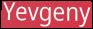
Yevgeny